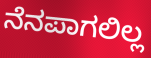
ನೆನಪಾಗಲಿಲ್ಲ